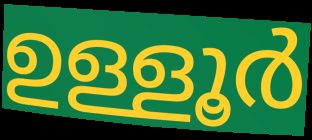
ഉള്ളൂർ